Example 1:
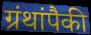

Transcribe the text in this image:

ग्रंथांपैकी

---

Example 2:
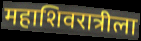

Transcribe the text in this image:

महाशिवरात्रीला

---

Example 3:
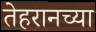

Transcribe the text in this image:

तेहरानच्या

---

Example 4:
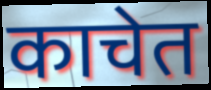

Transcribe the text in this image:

काचेत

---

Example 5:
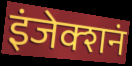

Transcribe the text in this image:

इंजेक्शनं